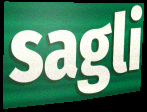
sagli